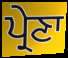
ਪ੍ਰੇਣਾ